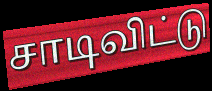
சாடிவிட்டு